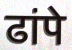
ढांपे